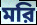
মরি